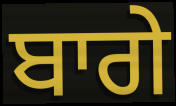
ਬਾਗੇ